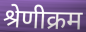
श्रेणीक्रम